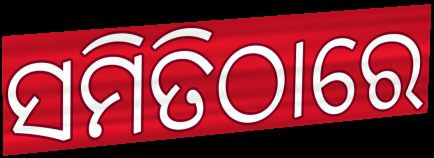
ସମିତିଠାରେ